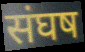
संघष